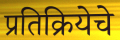
प्रतिक्रियेचे